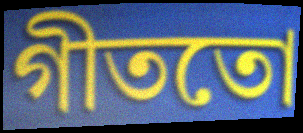
গীততো